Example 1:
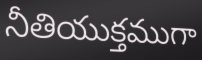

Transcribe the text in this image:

నీతియుక్తముగా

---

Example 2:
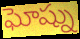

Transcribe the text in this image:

ఘోష్ను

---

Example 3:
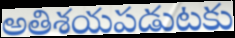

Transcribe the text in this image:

అతిశయపడుటకు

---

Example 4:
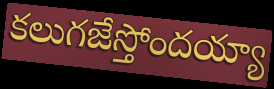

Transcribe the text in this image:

కలుగజేస్తోందయ్యా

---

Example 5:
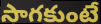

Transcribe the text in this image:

సాగకుంటే